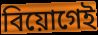
বিয়োগেই